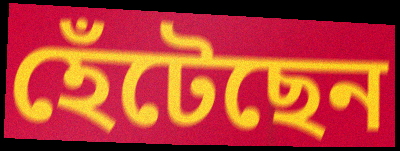
হেঁটেছেন